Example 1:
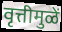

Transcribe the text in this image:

वृत्तीमुळें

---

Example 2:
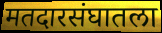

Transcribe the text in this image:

मतदारसंघातला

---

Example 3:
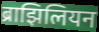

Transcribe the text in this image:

ब्राझिलियन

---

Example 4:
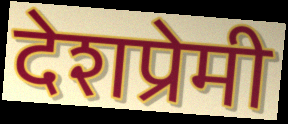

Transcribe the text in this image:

देशप्रेमी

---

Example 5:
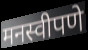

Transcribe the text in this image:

मनस्वीपणे